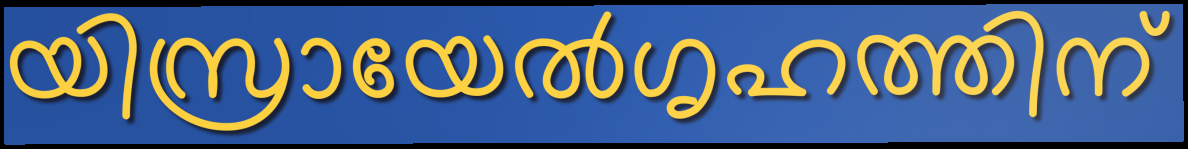
യിസ്രായേൽഗൃഹത്തിന്